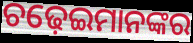
ଚଢ଼େଇମାନଙ୍କର